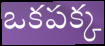
ఒకపక్క